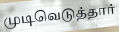
முடிவெடுத்தார்